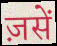
ज़सें